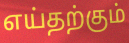
எய்தற்கும்